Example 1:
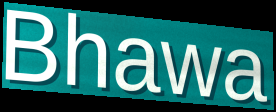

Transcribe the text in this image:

Bhawa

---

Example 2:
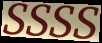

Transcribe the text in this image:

SSSS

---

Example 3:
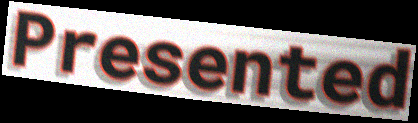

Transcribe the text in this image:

Presented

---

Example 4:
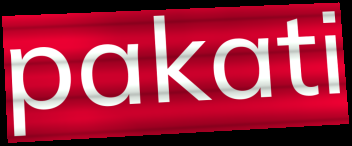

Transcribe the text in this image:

pakati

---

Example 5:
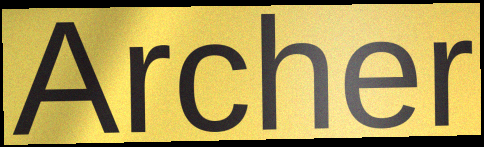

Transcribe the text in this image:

Archer